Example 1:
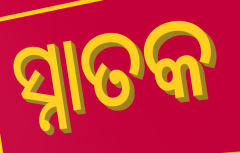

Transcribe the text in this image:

ସ୍ନାତକ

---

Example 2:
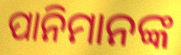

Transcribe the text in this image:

ପାନିମାନଙ୍କ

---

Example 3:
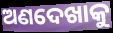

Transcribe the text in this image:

ଅଣଦେଖାକୁ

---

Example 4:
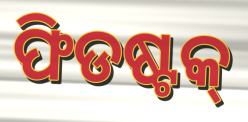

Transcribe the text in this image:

ଫିଡଷ୍ଟକ୍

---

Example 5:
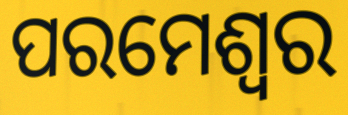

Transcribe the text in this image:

ପରମେଶ୍ବର